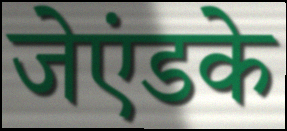
जेएंडके